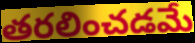
తరలించడమే